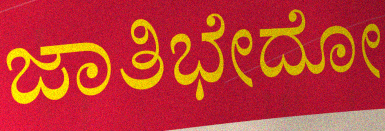
ಜಾತಿಭೇದೋ